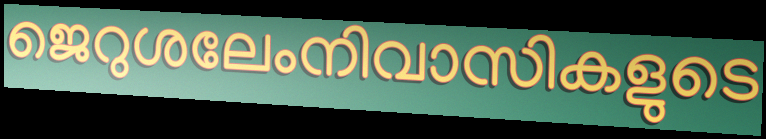
ജെറുശലേംനിവാസികളുടെ